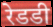
रेडडी